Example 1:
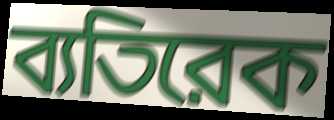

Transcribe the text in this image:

ব্যতিরেক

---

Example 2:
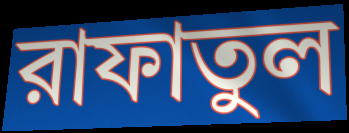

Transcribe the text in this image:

রাফাতুল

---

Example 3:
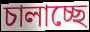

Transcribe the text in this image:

চালাচ্ছে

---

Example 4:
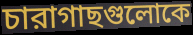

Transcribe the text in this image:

চারাগাছগুলোকে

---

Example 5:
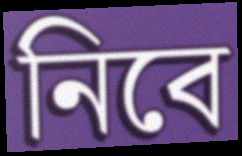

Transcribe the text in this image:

নিবে